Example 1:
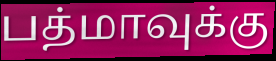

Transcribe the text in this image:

பத்மாவுக்கு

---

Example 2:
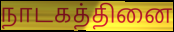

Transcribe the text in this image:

நாடகத்தினை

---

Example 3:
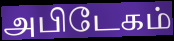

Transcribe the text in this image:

அபிடேகம்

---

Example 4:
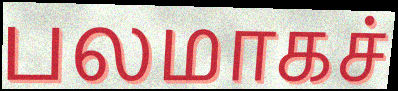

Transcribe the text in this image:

பலமாகச்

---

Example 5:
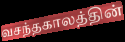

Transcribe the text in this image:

வசந்தகாலத்தின்